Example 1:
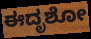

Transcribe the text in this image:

ಈದೃಶೋ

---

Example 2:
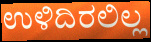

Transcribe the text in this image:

ಉಳಿದಿರಲಿಲ್ಲ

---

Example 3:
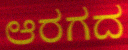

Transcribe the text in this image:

ಆರಗದ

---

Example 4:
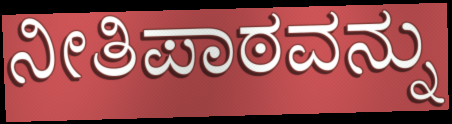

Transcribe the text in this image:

ನೀತಿಪಾಠವನ್ನು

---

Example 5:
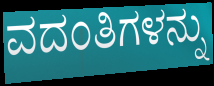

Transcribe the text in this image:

ವದಂತಿಗಳನ್ನು